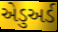
એડુઅર્ડ